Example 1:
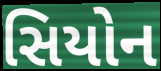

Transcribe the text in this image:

સિયોન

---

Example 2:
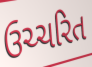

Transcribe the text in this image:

ઉચ્ચરિત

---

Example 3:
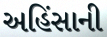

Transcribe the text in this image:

અહિંસાની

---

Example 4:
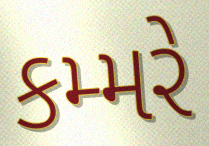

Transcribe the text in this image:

કમ્મરે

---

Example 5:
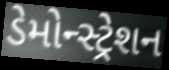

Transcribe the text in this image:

ડેમોન્સ્ટ્રેશન